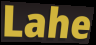
Lahe